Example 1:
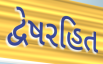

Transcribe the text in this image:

દ્વેષરહિત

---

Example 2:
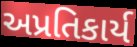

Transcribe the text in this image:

અપ્રતિકાર્ય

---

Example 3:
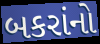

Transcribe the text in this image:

બકરાંનો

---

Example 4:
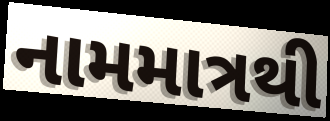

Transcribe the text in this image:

નામમાત્રથી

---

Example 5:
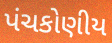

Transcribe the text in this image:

પંચકોણીય